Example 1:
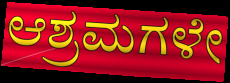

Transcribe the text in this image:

ಆಶ್ರಮಗಳೇ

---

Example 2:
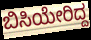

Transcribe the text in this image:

ಬಿಸಿಯೇರಿದ್ದ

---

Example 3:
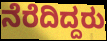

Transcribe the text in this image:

ನೆರೆದಿದ್ದರು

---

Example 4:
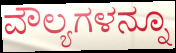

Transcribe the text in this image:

ವೌಲ್ಯಗಳನ್ನೂ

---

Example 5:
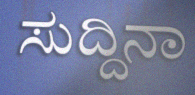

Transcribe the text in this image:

ಸುದ್ದಿನಾ